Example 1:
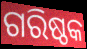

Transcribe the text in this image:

ଗରିଷ୍ଠକ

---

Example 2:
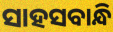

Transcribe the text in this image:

ସାହସବାନ୍ଧି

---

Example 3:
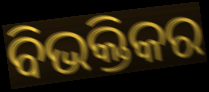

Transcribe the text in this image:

ବିଭକ୍ତିକର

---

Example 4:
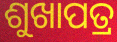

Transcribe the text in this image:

ଶୁଖାପତ୍ର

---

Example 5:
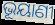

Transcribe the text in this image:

ଭୂୟାଣୀ